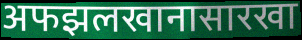
अफझलखानासारखा